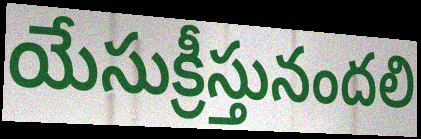
యేసుక్రీస్తునందలి